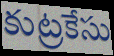
కుట్రకేసు